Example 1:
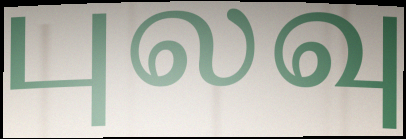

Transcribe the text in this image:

புலவு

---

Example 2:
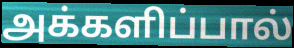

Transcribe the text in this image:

அக்களிப்பால்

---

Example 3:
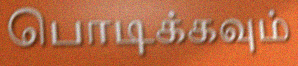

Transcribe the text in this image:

பொடிக்கவும்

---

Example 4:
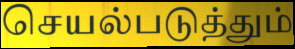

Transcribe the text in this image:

செயல்படுத்தும்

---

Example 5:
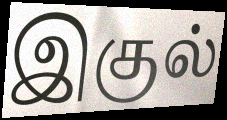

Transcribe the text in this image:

இகுல்